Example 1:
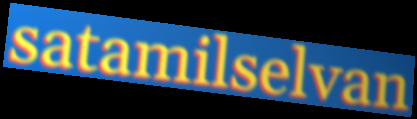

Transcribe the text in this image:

satamilselvan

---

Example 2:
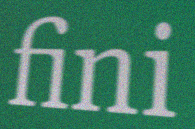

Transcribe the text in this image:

fini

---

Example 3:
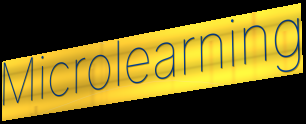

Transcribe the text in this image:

Microlearning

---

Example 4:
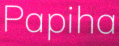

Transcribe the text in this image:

Papiha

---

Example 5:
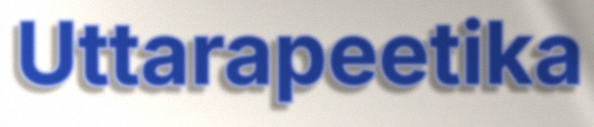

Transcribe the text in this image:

Uttarapeetika